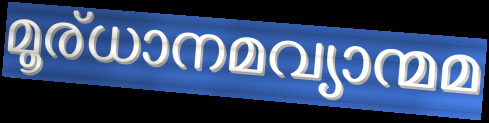
മൂര്ധാനമവ്യാന്മമ